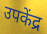
उपकेंद्र